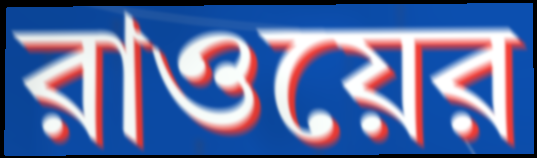
রাওয়ের